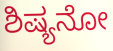
ಶಿಷ್ಯನೋ